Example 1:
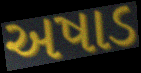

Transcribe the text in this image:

અષાડ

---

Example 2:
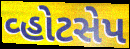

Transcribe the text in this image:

વ્હોટસેપ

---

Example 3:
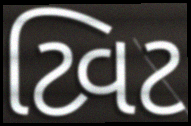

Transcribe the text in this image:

ટ્વિટ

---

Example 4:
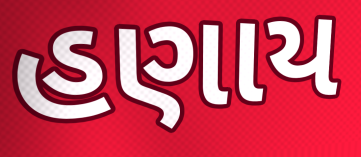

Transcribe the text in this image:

હણાય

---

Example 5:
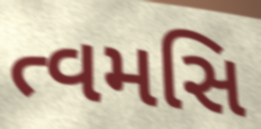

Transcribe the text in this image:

ત્વમસિ